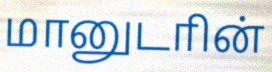
மானுடரின்